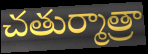
చతుర్మాత్రా